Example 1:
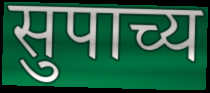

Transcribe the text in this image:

सुपाच्य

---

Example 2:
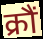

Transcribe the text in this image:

क्रौं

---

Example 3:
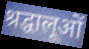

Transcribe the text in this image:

श्रद्धालूओं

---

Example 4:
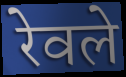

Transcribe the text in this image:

रेवले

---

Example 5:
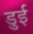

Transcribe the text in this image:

डुई